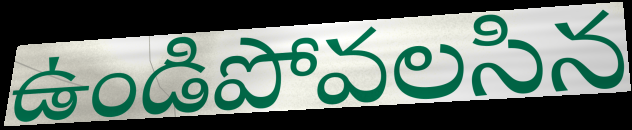
ఉండిపోవలసిన